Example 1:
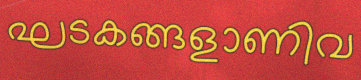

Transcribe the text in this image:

ഘടകങ്ങളാണിവ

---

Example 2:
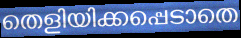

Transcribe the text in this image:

തെളിയിക്കപ്പെടാതെ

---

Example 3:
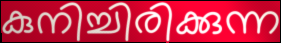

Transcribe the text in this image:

കുനിച്ചിരിക്കുന്ന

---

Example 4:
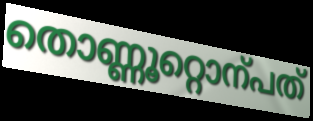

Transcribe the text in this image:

തൊണ്ണൂറ്റൊന്പത്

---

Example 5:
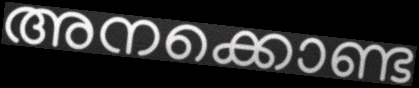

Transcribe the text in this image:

അനക്കൊണ്ട